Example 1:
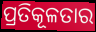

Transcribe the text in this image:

ପ୍ରତିକୂଳତାର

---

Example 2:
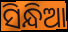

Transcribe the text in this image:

ସିନ୍ଧିଆ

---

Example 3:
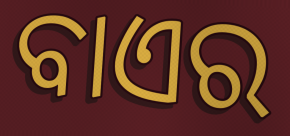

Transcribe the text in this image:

ବାଏର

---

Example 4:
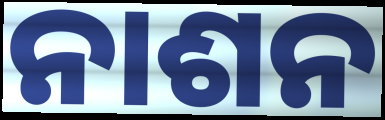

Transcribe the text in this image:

ନାଶନ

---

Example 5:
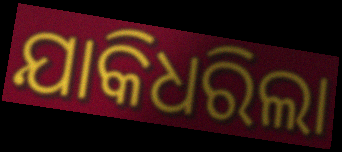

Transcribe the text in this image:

ଯାକିଧରିଲା